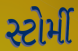
સ્ટોર્મી